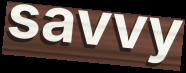
savvy